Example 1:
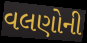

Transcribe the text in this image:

વલણોની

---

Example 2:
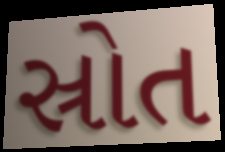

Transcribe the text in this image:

સ્રોત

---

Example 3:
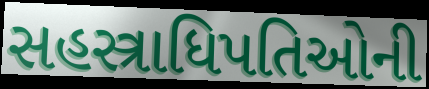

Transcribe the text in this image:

સહસ્ત્રાધિપતિઓની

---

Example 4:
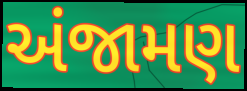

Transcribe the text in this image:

અંજામણ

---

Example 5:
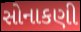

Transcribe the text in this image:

સોનાકણી